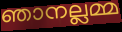
ഞാനല്ലമ്മ